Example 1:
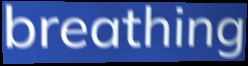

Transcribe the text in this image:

breathing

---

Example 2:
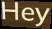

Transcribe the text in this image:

Hey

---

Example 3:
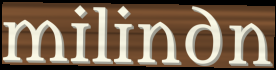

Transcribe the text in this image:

milindn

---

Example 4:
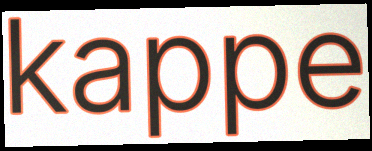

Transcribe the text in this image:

kappe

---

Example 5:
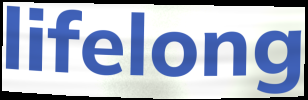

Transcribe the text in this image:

lifelong